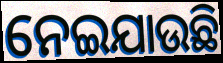
ନେଇଯାଉଛି